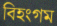
বিহংগম